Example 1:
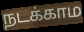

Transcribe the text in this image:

நடக்காம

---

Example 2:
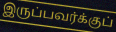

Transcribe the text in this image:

இருப்பவர்க்குப்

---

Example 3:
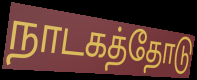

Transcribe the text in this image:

நாடகத்தோடு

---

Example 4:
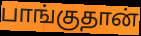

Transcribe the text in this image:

பாங்குதான்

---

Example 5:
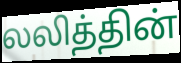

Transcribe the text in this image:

லலித்தின்